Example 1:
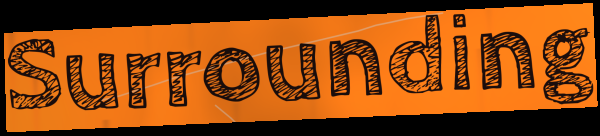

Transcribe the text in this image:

Surrounding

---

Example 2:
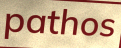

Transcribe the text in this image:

pathos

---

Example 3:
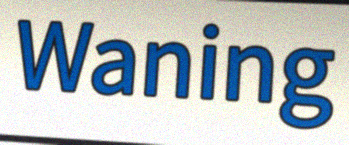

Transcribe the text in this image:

Waning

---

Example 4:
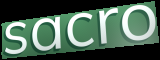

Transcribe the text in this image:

sacro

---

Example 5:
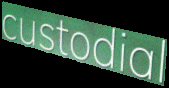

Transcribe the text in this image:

custodial